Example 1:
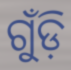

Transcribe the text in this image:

ଗୁଁଡ଼ି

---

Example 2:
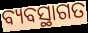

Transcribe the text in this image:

ବ୍ୟବସ୍ଥାଗତ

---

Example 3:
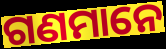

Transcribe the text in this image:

ଗଣମାନେ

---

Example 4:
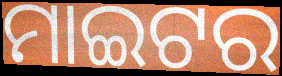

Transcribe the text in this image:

ମାଇଟର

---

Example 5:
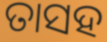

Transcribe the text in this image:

ତାସହ